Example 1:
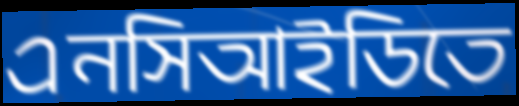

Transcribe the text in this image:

এনসিআইডিতে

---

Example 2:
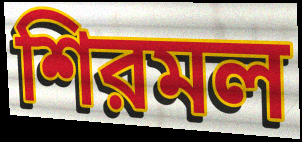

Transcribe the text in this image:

শিরমল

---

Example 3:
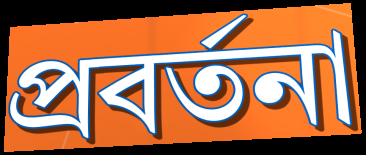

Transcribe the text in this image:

প্রবর্তনা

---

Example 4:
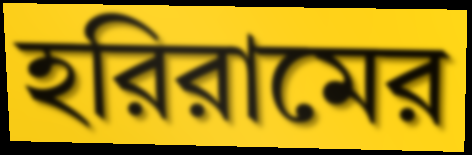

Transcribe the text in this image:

হরিরামের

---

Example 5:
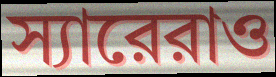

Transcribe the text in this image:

স্যারেরাও